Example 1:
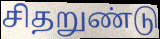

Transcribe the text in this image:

சிதறுண்டு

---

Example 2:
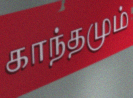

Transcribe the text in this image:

காந்தமும்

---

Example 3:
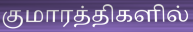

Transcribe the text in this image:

குமாரத்திகளில்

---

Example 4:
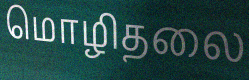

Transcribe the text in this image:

மொழிதலை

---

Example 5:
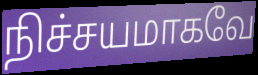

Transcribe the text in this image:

நிச்சயமாகவே